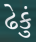
ઢેકું